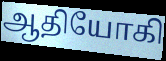
ஆதியோகி